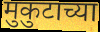
मुकुटाच्या